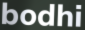
bodhi